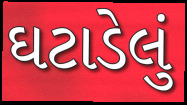
ઘટાડેલું